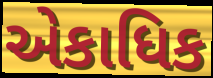
એકાધિક